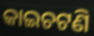
କାଇଚଟଣି